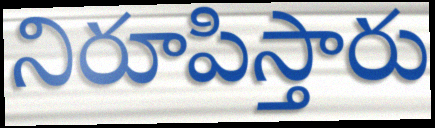
నిరూపిస్తారు